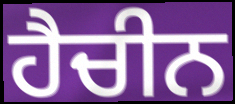
ਹੈਚੀਨ